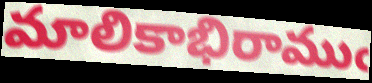
మాలికాభిరాముఁ